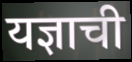
यज्ञाची